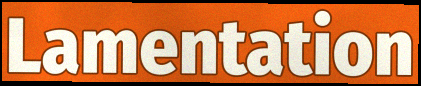
Lamentation